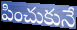
పించుకునే